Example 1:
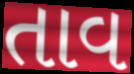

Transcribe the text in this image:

તાવ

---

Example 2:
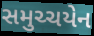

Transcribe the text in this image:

સમુચ્ચયેન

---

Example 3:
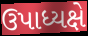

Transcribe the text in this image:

ઉપાધ્યક્ષે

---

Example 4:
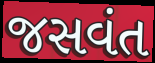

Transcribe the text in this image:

જસવંત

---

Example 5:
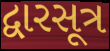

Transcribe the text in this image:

દ્વારસૂત્ર